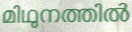
മിഥുനത്തിൽ